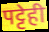
पट्टेही